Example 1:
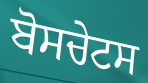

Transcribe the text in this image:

ਬੋਸਚੇਟਸ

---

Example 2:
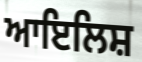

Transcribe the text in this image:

ਆਇਲਿਸ਼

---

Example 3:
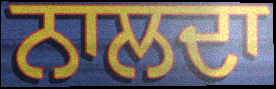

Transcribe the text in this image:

ਨਾਲਦਾ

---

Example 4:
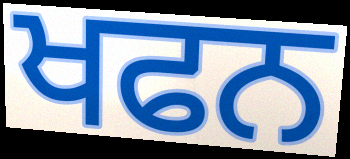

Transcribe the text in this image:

ਖਫਨ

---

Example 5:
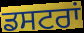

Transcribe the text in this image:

ਡਸਟਰਾਂ